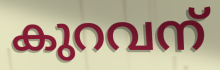
കുറവന്